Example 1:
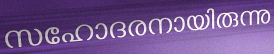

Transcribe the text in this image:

സഹോദരനായിരുന്നു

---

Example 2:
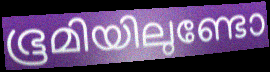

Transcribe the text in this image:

ഭൂമിയിലുണ്ടോ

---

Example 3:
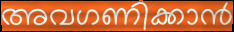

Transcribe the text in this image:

അവഗണിക്കാൻ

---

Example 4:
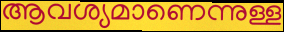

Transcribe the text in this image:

ആവശ്യമാണെന്നുള്ള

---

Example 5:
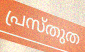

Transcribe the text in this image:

പ്രസ്തുത